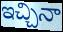
ఇచ్చినా